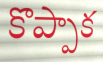
కొప్పాక